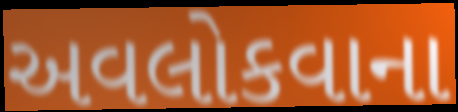
અવલોકવાના